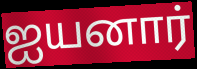
ஐயனார்